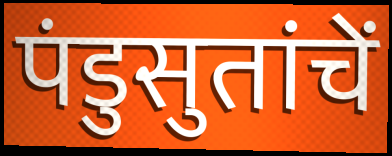
पंडुसुतांचें